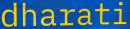
dharati